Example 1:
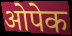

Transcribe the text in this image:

ओपेक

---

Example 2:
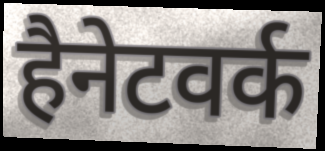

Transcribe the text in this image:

हैनेटवर्क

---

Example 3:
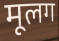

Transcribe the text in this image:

मूलग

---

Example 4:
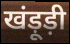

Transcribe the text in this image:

खंड़ूड़ी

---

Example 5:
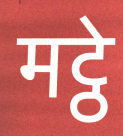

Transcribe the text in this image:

मट्ठे